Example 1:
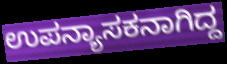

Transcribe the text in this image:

ಉಪನ್ಯಾಸಕನಾಗಿದ್ದ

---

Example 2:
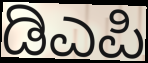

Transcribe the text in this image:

ಡಿಎಪಿ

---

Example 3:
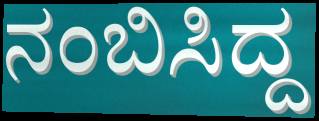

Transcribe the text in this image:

ನಂಬಿಸಿದ್ದ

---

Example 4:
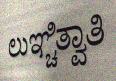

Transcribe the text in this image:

ಲುಞ್ಚಿತ್ವಾತಿ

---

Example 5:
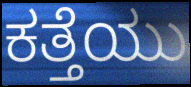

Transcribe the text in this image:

ಕತ್ತೆಯು